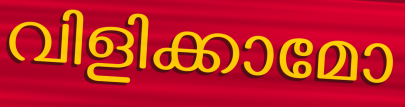
വിളിക്കാമോ